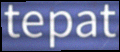
tepat